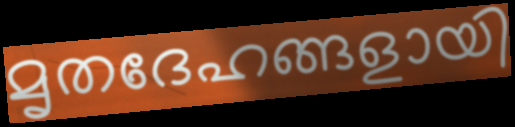
മൃതദേഹങ്ങളായി